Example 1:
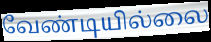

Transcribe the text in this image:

வேண்டியில்லை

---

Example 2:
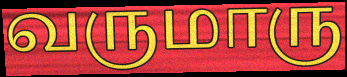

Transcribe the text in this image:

வருமாரு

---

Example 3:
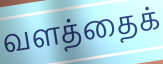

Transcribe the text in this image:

வளத்தைக்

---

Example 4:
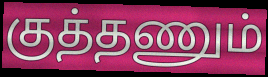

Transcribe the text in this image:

குத்தணும்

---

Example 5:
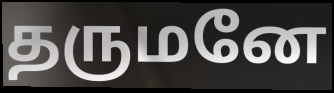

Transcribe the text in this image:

தருமனே